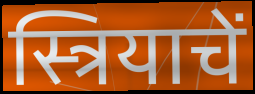
स्त्रियाचें